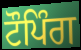
ਟੌਪਿੰਗ